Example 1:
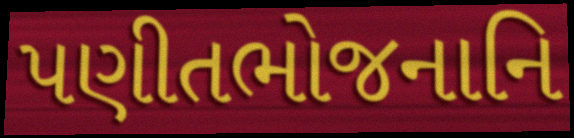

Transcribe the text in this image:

પણીતભોજનાનિ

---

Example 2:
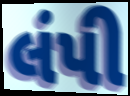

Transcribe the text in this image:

લંપી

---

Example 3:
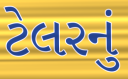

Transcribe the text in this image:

ટેલરનું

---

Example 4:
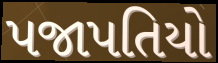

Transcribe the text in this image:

પજાપતિયો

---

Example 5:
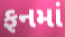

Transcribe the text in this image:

ફનમાં